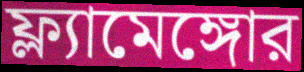
ফ্ল্যামেঙ্গোর